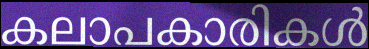
കലാപകാരികൾ